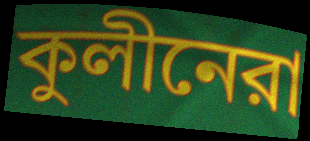
কুলীনেরা